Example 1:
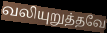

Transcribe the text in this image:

வலியுறுத்தவே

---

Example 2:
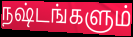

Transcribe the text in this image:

நஷ்டங்களும்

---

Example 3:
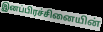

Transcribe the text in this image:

இனப்பிரச்சினையின்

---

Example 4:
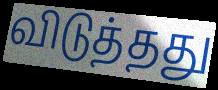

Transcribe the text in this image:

விடுத்தது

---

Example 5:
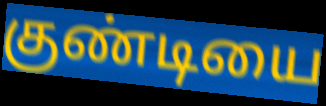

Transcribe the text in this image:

குண்டியை